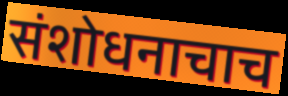
संशोधनाचाच